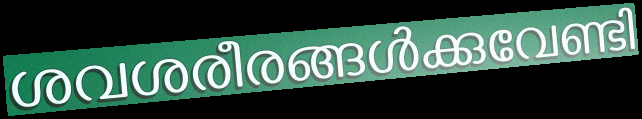
ശവശരീരങ്ങൾക്കുവേണ്ടി